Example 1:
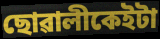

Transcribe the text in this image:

ছোৱালীকেইটা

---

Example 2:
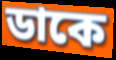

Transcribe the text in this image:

ডাকে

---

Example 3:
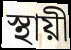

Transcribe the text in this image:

স্থায়ী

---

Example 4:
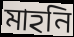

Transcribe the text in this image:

মাহনি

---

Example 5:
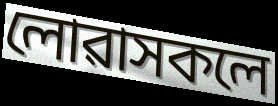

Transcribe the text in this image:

লোৱাসকলে